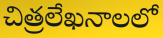
చిత్రలేఖనాలలో